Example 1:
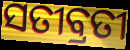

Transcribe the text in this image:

ସତୀବ୍ରତୀ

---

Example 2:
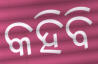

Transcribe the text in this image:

କହିବି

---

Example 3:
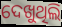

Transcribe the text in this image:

ଦେଖୁଥିଲି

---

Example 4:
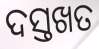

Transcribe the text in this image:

ଦସ୍ତଖତ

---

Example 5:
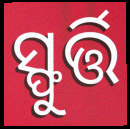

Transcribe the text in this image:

ସ୍ଫୁର୍ତ୍ତି